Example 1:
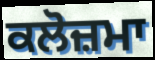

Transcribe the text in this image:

ਕਲੋਜ਼ਮਾ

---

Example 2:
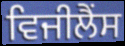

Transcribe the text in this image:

ਵਿਜੀਲੈਂਸ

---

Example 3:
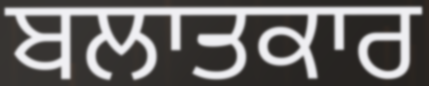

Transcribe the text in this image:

ਬਲਾਤਕਾਰ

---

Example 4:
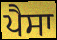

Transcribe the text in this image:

ਪੈਸਾ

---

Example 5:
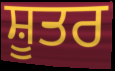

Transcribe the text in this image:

ਸ਼ੂਤਰ